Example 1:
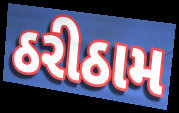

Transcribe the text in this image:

ઠરીઠામ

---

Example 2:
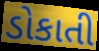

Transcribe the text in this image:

ડોકાતી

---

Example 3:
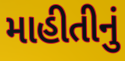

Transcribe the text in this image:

માહીતીનું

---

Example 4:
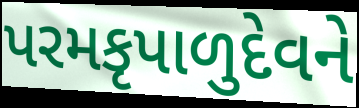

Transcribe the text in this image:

પરમકૃપાળુદેવને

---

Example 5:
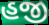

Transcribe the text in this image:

હજી